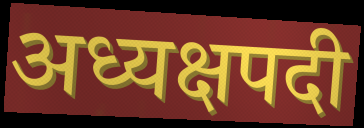
अध्यक्षपदी